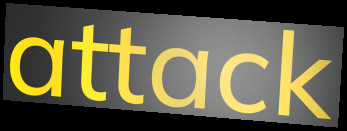
attack